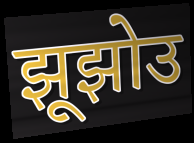
झूझोउ